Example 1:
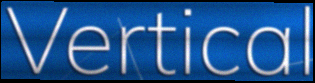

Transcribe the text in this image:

Vertical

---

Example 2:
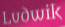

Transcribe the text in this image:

Ludwik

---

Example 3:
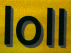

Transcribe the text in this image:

loll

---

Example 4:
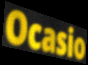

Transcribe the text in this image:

Ocasio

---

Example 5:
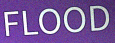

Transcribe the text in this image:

FLOOD